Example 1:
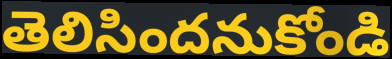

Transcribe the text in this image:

తెలిసిందనుకోండి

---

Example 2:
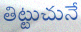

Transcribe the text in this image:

తిట్టుచునే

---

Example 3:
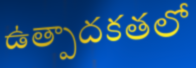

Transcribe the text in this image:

ఉత్పాదకతలో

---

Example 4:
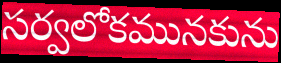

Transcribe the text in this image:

సర్వలోకమునకును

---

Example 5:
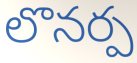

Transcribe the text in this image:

లొనర్ప